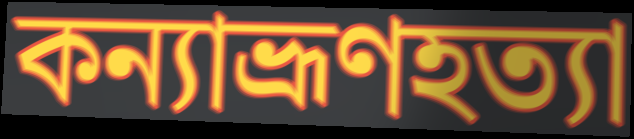
কন্যাভ্রূণহত্যা